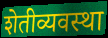
शेतीव्यवस्था